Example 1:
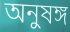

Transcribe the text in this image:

অনুষঙ্গ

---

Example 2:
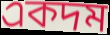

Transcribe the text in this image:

একদম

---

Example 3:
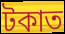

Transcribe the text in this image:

টকাত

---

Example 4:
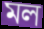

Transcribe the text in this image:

মল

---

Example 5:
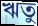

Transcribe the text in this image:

ঋতু